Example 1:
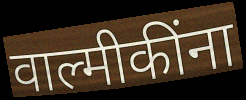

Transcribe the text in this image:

वाल्मीकींना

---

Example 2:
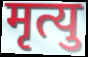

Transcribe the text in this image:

मृत्यु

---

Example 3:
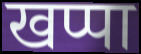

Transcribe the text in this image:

खप्पा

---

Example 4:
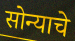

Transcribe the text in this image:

सोन्याचे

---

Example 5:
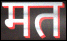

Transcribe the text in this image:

मत